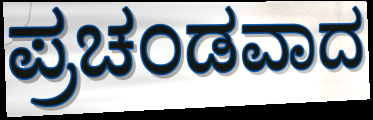
ಪ್ರಚಂಡವಾದ